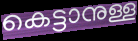
കെട്ടാനുള്ള